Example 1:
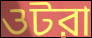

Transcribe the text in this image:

ওটরা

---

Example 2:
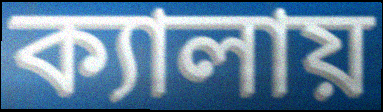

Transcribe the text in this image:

ক্যালায়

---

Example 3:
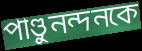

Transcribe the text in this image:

পাণ্ডুনন্দনকে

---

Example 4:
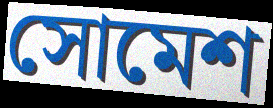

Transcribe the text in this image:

সোমেশ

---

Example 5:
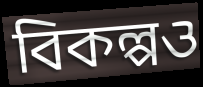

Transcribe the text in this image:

বিকল্পও